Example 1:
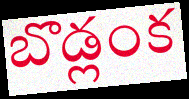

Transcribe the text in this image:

బొడ్లంక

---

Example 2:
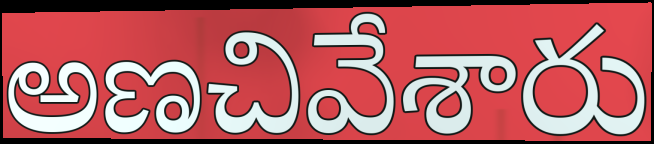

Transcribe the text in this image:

అణచివేశారు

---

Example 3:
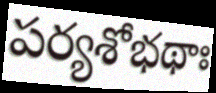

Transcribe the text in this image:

పర్యశోభథాః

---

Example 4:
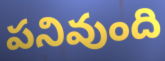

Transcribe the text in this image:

పనివుంది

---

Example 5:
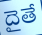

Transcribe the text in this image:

దైతే